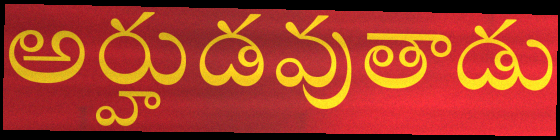
అర్హుడవుతాడు